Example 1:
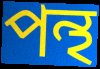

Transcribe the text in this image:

পন্থ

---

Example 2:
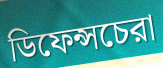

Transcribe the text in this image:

ডিফেন্সচেরা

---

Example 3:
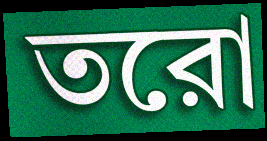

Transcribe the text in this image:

তরো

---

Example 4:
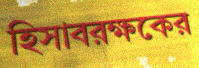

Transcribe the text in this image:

হিসাবরক্ষকের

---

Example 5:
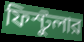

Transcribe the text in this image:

ফিস্টুলার